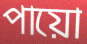
পায়ো